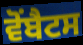
ਵੋਂਬੈਟਸ